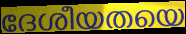
ദേശീയതയെ